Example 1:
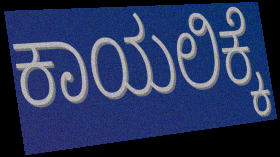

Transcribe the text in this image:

ಕಾಯಲಿಕ್ಕೆ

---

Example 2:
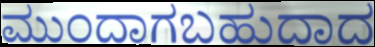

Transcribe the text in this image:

ಮುಂದಾಗಬಹುದಾದ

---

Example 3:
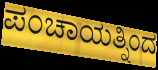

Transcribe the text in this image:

ಪಂಚಾಯತ್ನಿಂದ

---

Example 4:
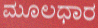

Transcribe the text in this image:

ಮೂಲಧಾರ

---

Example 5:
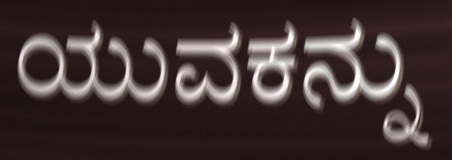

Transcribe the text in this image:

ಯುವಕನ್ನು